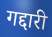
गद्दारी